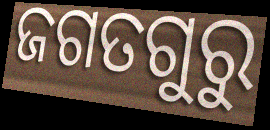
ଜଗତଗୁରୁ